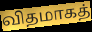
விதமாகத்